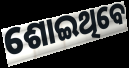
ଶୋଇଥିବେ